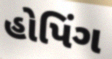
હોપિંગ